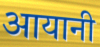
आयानी